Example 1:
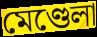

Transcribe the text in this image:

মেণ্ডেলা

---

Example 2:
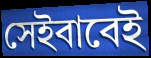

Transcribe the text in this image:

সেইবাবেই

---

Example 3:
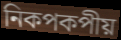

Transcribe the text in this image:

নিকপকপীয়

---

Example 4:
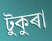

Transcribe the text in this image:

টুকুৰা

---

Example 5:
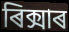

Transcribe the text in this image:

ৰিক্সাৰ